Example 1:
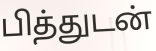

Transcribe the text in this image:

பித்துடன்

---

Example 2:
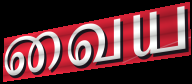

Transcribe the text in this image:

வைய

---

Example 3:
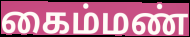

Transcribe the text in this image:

கைம்மண்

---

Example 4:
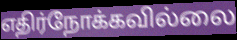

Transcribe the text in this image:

எதிர்நோக்கவில்லை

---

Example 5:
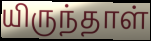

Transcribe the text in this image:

யிருந்தாள்